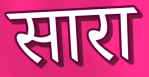
सारा